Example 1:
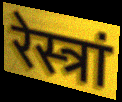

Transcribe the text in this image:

रेस्त्रां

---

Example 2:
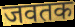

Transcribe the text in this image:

जवतक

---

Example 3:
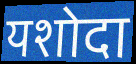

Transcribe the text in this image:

यशोदा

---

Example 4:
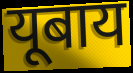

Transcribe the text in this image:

यूबाय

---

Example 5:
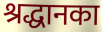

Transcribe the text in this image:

श्रद्धानका